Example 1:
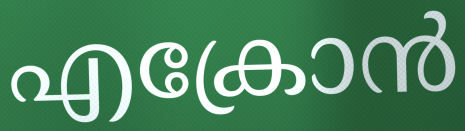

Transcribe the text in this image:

എക്രോൻ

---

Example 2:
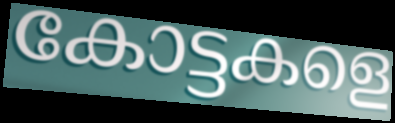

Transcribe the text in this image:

കോട്ടകളെ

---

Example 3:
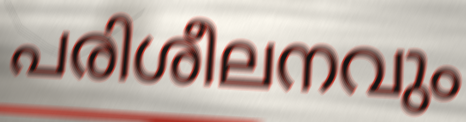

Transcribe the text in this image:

പരിശീലനവും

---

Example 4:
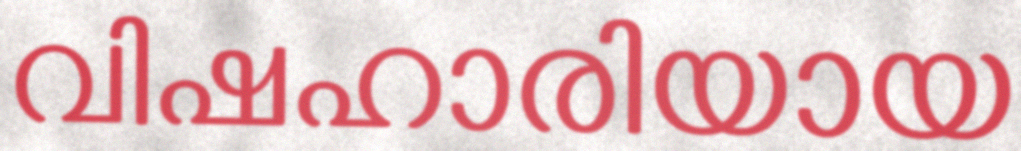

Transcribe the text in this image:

വിഷഹാരിയായ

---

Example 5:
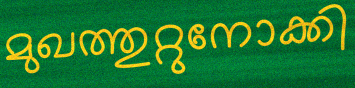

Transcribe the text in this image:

മുഖത്തുറ്റുനോക്കി